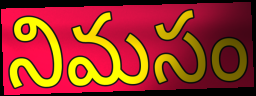
నిమసం